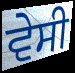
ਵੇਸੀ